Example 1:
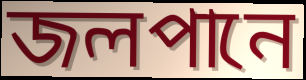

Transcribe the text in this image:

জলপানে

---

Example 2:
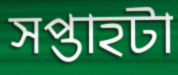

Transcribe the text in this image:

সপ্তাহটা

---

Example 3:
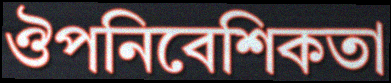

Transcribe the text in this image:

ঔপনিবেশিকতা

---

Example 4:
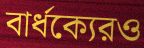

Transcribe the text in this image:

বার্ধক্যেরও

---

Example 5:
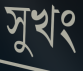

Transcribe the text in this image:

সুখং